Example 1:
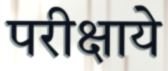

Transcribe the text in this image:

परीक्षाये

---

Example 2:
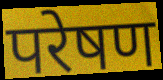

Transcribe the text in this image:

परेषण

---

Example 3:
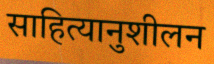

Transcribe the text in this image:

साहित्यानुशीलन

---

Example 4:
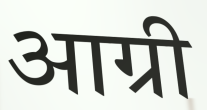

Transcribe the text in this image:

आग्री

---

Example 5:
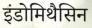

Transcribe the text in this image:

इंडोमिथैसिन